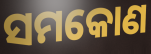
ସମକୋଣ